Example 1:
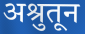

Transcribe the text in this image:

अश्रुतून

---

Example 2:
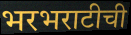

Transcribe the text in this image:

भरभराटीची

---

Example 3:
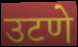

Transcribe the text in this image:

उटणे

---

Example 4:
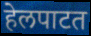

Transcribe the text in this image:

हेलपाटत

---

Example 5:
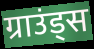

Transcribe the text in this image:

ग्राउंड्स